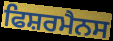
ਫਿਸ਼ਰਮੈਨਸ